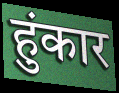
हुंकार